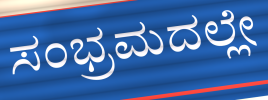
ಸಂಭ್ರಮದಲ್ಲೇ